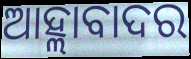
ଆହ୍ଲାବାଦର